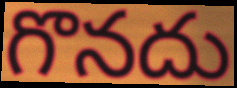
గొనదు